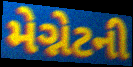
મેગ્નેટની